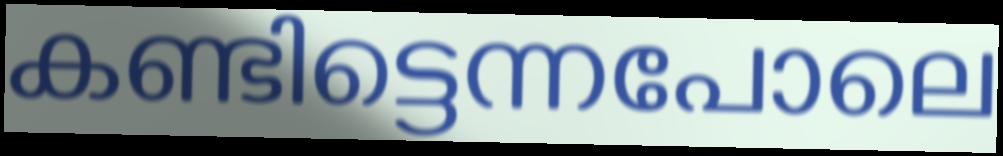
കണ്ടിട്ടെന്നപോലെ